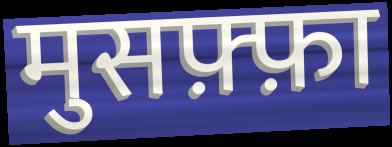
मुसफ़्फ़ा